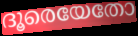
ദൂരെയേതോ